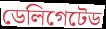
ডেলিগেটেড